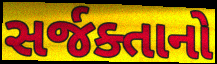
સર્જક્તાનો